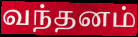
வந்தனம்